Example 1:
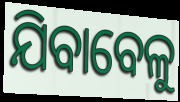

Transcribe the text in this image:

ଯିବାବେଳୁ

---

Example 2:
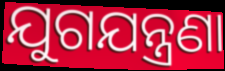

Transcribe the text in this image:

ଯୁଗଯନ୍ତ୍ରଣା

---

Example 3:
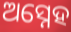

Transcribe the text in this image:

ଅସ୍ନେହ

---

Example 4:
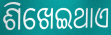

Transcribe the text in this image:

ଶିଖେଇଥାଏ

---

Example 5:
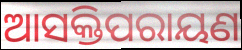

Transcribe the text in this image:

ଆସକ୍ତିପରାୟଣ